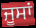
ਜੂਸਾਂ